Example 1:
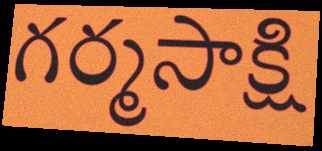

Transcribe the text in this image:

గర్మసాక్షి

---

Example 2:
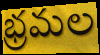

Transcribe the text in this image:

భ్రమల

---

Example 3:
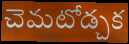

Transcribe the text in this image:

చెమటోడ్చక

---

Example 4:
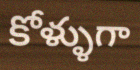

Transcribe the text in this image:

కోళ్ళుగా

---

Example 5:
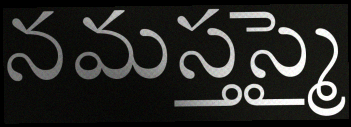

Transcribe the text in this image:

నమస్తస్మై